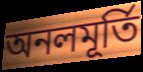
অনলমূর্তি